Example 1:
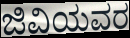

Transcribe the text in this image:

ಜಿವಿಯವರ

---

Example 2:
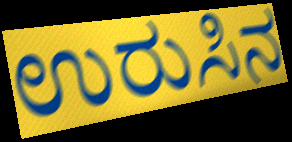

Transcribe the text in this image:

ಉರುಸಿನ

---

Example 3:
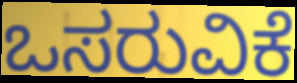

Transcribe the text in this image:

ಒಸರುವಿಕೆ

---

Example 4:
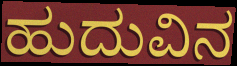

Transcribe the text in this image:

ಹುದುವಿನ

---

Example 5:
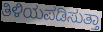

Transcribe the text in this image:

ತಿಳಿಯಪಡಿಸುತ್ತಾ